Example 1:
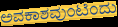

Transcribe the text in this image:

ಅವಕಾಶವುಂಟೆಂದು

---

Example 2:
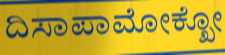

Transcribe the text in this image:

ದಿಸಾಪಾಮೋಕ್ಖೋ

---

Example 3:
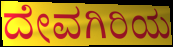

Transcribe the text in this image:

ದೇವಗಿರಿಯ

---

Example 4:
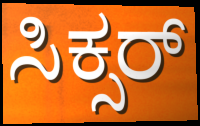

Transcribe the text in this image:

ಸಿಕ್ಸರ್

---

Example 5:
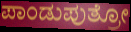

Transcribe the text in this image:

ಪಾಂಡುಪುತ್ರೋ